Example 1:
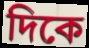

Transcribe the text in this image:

দিকে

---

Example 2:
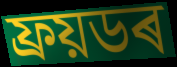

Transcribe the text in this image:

ফ্ৰয়ডৰ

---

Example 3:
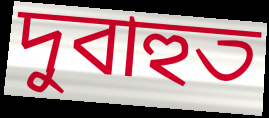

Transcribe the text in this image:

দুবাহুত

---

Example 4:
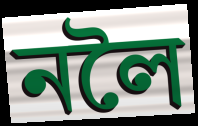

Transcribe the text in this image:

নলৈ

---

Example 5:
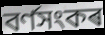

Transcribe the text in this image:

বৰ্ণসংকৰ